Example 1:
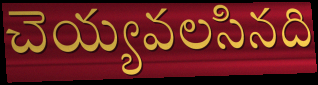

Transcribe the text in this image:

చెయ్యవలసినది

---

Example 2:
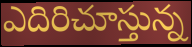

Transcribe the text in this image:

ఎదిరిచూస్తున్న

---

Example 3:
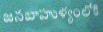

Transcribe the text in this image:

జనబాహుళ్యంలోకి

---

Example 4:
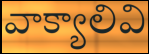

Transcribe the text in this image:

వాక్యాలివి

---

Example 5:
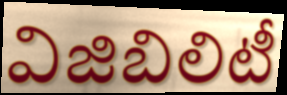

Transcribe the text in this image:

విజిబిలిటీ